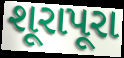
શૂરાપૂરા